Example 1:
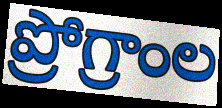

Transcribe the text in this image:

ప్రోగ్రాంల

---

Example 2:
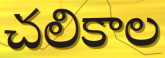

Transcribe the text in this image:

చలికాల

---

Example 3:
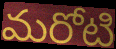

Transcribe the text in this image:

మరోటి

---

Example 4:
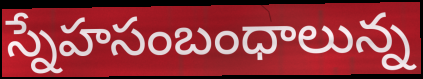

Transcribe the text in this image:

స్నేహసంబంధాలున్న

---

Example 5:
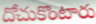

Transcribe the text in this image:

దోచుకొంటారు